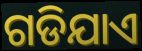
ଗଡିଯାଏ